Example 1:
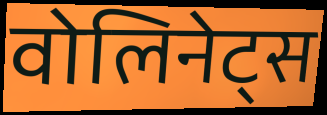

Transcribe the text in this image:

वोलिनेट्स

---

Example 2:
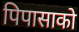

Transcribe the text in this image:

पिपासाको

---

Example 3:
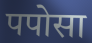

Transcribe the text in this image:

पपोसा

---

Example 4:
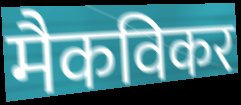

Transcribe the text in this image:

मैकविकर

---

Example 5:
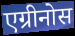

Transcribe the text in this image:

एग्रीनोस